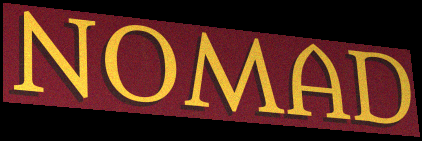
NOMAD